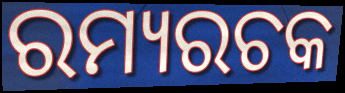
ରମ୍ୟରଚକ